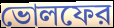
ভোলফের